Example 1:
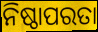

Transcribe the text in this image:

ନିଷ୍ଠାପରତା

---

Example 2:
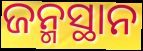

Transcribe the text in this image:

ଜନ୍ମସ୍ଥାନ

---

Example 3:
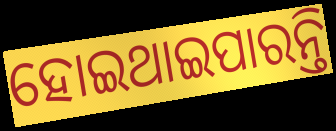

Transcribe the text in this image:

ହୋଇଥାଇପାରନ୍ତି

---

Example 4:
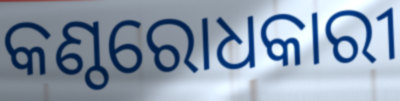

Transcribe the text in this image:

କଣ୍ଠରୋଧକାରୀ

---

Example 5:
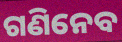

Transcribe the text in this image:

ଗଣିନେବ